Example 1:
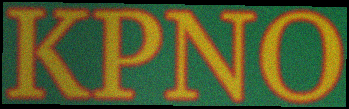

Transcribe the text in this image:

KPNO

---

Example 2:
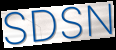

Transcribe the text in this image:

SDSN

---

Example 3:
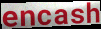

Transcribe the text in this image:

encash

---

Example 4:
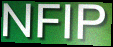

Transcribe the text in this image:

NFIP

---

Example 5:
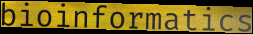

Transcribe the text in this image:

bioinformatics